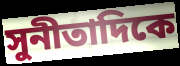
সুনীতাদিকে